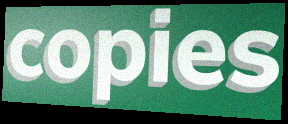
copies